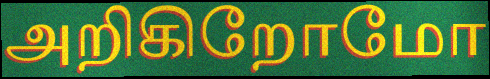
அறிகிறோமோ